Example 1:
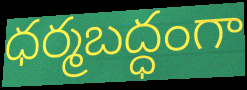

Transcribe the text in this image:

ధర్మబద్ధంగా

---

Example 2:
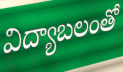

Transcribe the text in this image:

విద్యాబలంతో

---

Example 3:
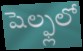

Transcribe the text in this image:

షెల్ఫ్లలో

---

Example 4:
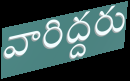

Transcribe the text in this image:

వారిద్దరు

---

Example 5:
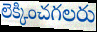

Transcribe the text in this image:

లెక్కించగలరు